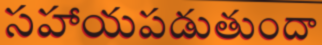
సహాయపడుతుందా